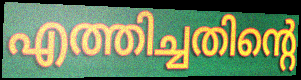
എത്തിച്ചതിന്റെ